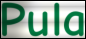
Pula